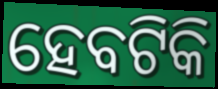
ହେବଟିକି